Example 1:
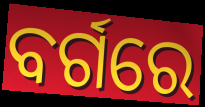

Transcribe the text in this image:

ବର୍ଗରେ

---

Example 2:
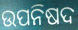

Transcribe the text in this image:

ଉପନିଷଦ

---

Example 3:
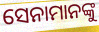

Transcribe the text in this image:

ସେନାମାନଙ୍କୁ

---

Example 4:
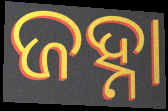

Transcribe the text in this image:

ଜହ୍ନା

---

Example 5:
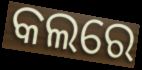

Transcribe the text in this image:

କଲରେ